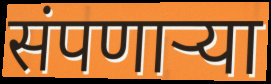
संपणार्‍या